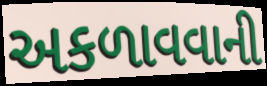
અકળાવવાની